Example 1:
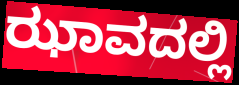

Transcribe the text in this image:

ಝಾವದಲ್ಲಿ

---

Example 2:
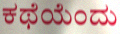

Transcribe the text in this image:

ಕಥೆಯೆಂದು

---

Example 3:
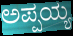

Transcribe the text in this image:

ಅಪ್ಪಯ್ಯ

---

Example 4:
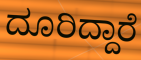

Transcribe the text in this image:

ದೂರಿದ್ದಾರೆ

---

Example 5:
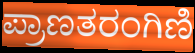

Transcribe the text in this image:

ಪ್ರಾಣತರಂಗಿಣಿ